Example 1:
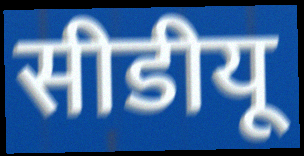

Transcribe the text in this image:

सीडीयू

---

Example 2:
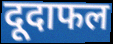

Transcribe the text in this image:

दूदाफल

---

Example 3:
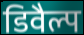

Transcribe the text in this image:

डिवैल्प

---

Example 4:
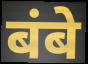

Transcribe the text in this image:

बंबे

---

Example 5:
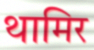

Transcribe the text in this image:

थामिर